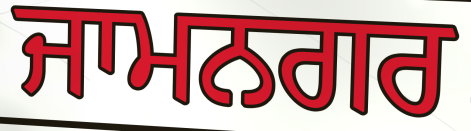
ਜਾਮਨਗਰ